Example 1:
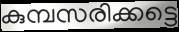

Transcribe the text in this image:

കുമ്പസരിക്കട്ടെ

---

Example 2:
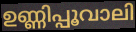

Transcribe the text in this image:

ഉണ്ണിപ്പൂവാലി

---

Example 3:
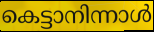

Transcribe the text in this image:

കെട്ടാനിന്നാൾ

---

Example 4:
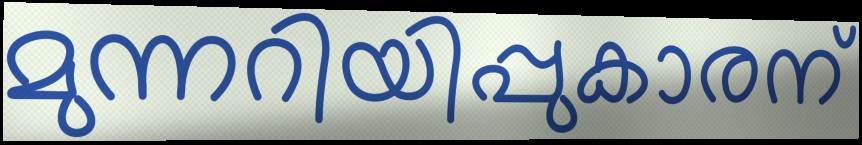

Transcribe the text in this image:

മുന്നറിയിപ്പുകാരന്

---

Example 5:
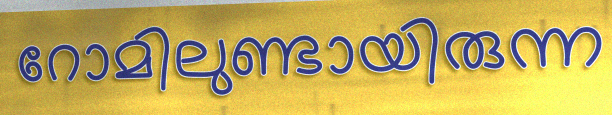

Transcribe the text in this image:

റോമിലുണ്ടായിരുന്ന